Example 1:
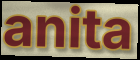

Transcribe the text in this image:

anita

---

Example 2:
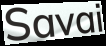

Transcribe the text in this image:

Savai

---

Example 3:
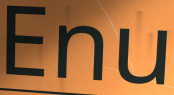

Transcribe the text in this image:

Enu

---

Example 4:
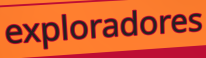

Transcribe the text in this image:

exploradores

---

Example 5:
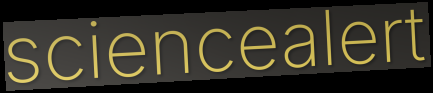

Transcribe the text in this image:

sciencealert